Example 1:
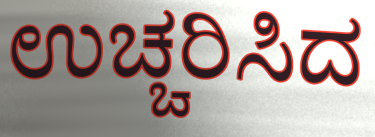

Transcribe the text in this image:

ಉಚ್ಚರಿಸಿದ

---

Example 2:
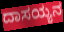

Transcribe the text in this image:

ದಾಸಯ್ಯನ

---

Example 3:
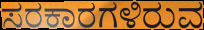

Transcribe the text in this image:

ಸರಕಾರಗಳಿರುವ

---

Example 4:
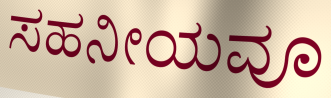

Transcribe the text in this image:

ಸಹನೀಯವೂ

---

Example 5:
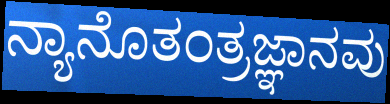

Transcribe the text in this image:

ನ್ಯಾನೊತಂತ್ರಜ್ಞಾನವು